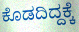
ಕೊಡದಿದ್ದಕ್ಕೆ